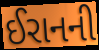
ઈરાનની